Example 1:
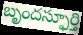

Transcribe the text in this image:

బృందస్ఫూర్తి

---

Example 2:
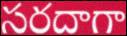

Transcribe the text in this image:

సరదాగా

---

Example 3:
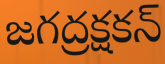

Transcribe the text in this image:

జగద్రక్షకన్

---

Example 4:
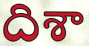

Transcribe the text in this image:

దిశా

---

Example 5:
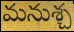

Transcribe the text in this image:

మనుశ్చ